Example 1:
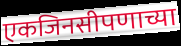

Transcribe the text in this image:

एकजिनसीपणाच्या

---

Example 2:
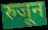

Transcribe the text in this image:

रुजून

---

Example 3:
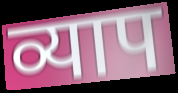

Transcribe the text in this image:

व्याप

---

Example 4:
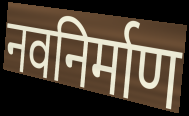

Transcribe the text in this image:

नवनिर्माण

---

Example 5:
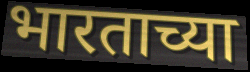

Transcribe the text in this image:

भारताच्या